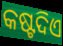
କଷ୍ଟଦିଏ